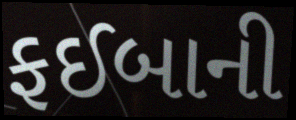
ફઈબાની